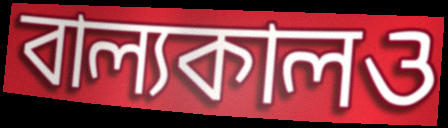
বাল্যকালও